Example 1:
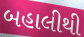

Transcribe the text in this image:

બહાલીથી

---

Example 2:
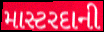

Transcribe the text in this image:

માસ્ટરદાની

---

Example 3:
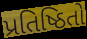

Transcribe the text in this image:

પ્રતિષ્ઠિતો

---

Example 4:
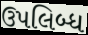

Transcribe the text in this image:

ઉપલિબ્ધ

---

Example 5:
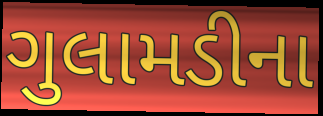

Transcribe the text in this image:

ગુલામડીના